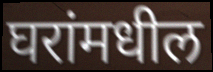
घरांमधील